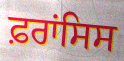
ਫ਼ਰਾਂਸਿਸ